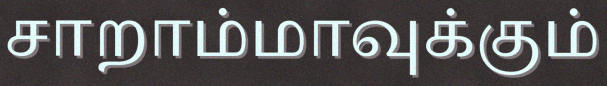
சாறாம்மாவுக்கும்